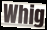
Whig